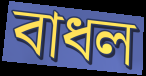
বাধল